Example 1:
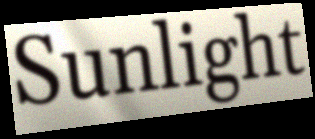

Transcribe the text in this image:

Sunlight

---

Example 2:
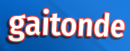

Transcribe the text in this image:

gaitonde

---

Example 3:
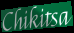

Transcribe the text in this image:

Chikitsa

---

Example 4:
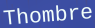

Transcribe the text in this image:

Thombre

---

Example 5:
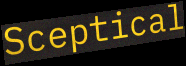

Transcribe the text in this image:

Sceptical